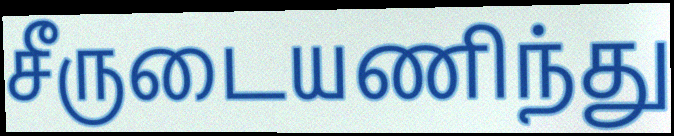
சீருடையணிந்து